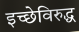
इच्छेविरुद्ध